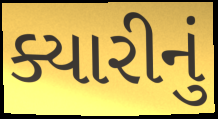
ક્યારીનું